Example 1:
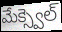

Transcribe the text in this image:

మేక్స్వెల్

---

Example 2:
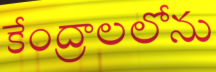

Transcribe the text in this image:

కేంద్రాలలోను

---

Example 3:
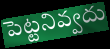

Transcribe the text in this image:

పెట్టనివ్వదు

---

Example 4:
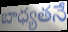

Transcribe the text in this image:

బాధ్యతనే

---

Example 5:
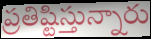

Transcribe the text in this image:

ప్రతిష్టిస్తున్నారు